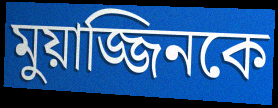
মুয়াজ্জিনকে